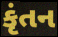
કૃંતન